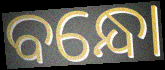
ବନ୍ଧୋ